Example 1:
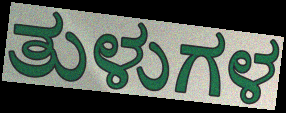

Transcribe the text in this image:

ತುಳುಗಳ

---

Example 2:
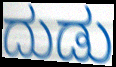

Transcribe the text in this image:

ದುಡು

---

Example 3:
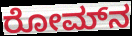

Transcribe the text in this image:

ರೋಮ್‍ನ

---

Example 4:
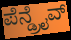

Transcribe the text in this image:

ಪೆನ್ಡ್ರೈವ್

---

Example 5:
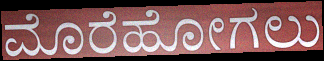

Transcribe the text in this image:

ಮೊರೆಹೋಗಲು